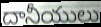
దానీయులు